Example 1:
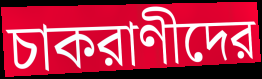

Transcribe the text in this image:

চাকরাণীদের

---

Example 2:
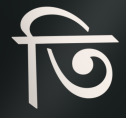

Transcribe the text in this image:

তি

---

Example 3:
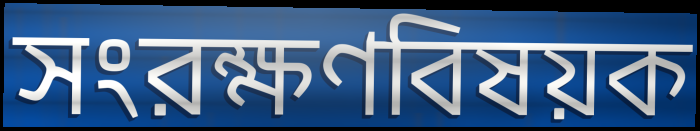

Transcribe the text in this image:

সংরক্ষণবিষয়ক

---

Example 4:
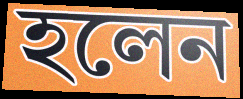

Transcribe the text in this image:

হলেন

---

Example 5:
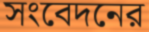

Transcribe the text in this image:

সংবেদনের